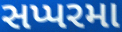
સપ્પરમા